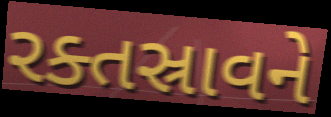
રક્તસ્રાવને